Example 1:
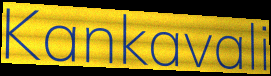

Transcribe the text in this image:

Kankavali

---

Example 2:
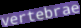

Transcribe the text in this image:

vertebrae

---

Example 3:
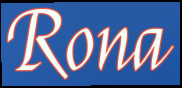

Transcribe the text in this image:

Rona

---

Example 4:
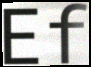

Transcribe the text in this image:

Ef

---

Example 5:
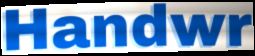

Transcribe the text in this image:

Handwr